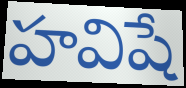
హవిషే